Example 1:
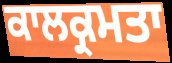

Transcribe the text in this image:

ਕਾਲਕ੍ਰਮਤਾ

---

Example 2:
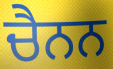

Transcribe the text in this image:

ਚੈਨਨ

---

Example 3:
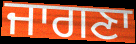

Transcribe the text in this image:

ਜਾਗਣਾ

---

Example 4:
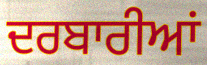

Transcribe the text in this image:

ਦਰਬਾਰੀਆਂ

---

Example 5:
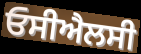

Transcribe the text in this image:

ਓਸੀਐਲਸੀ